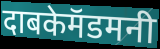
दाबकेमॅडमनी